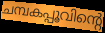
ചമ്പകപ്പൂവിന്റെ